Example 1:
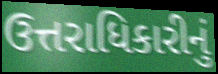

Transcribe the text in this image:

ઉત્તરાધિકારીનું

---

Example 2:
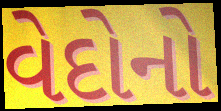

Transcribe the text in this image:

વેદોનો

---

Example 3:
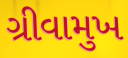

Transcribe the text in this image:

ગ્રીવામુખ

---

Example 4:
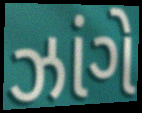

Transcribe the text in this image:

ઝાંગે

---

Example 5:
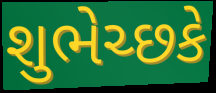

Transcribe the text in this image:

શુભેચ્છકે